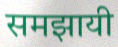
समझायी